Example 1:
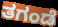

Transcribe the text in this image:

ತಗಂಡೆ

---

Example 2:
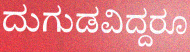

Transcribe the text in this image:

ದುಗುಡವಿದ್ದರೂ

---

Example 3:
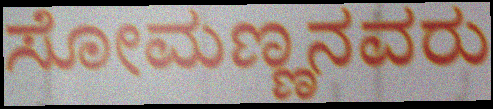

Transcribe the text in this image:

ಸೋಮಣ್ಣನವರು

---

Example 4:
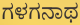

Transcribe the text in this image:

ಗಳಗನಾಥ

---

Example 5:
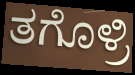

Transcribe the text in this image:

ತಗೊಳ್ರಿ